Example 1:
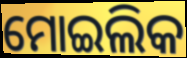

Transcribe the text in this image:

ମୋଇଲିକ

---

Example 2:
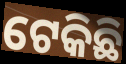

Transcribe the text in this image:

ଟେକିଛି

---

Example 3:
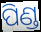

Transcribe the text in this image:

ପିଣ୍ଡ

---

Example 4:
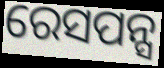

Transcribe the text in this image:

ରେସପନ୍ସ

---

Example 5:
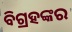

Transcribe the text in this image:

ବିଗ୍ରହଙ୍କର